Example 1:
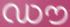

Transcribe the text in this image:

ഡൗ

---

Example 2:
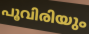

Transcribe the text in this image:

പൂവിരിയും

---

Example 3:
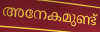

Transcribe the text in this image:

അനേകമുണ്ട്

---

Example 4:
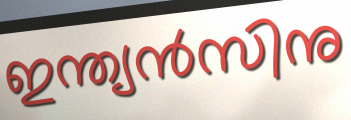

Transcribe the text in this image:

ഇന്ത്യൻസിനു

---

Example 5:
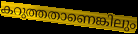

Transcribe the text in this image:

കറുത്തതാണെങ്കിലും